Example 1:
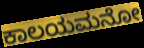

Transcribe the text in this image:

ಕಾಲಯಮನೋ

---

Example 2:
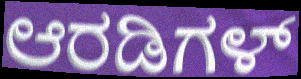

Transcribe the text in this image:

ಆರಡಿಗಳ್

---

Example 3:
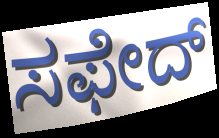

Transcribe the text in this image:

ಸಫೇದ್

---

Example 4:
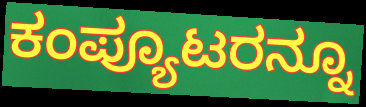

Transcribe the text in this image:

ಕಂಪ್ಯೂಟರನ್ನೂ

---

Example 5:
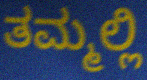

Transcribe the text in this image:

ತಮ್ಮಲ್ಲಿ